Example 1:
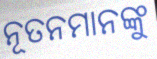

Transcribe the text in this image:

ନୂତନମାନଙ୍କୁ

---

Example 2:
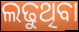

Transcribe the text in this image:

ଲଢୁଥିବା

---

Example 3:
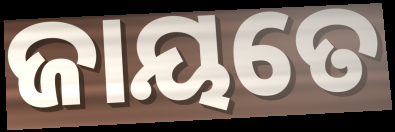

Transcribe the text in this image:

ଜାୟତେ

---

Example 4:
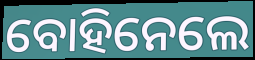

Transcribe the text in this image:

ବୋହିନେଲେ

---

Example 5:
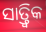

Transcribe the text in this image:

ସାତ୍ତ୍ବିକ